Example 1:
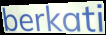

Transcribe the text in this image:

berkati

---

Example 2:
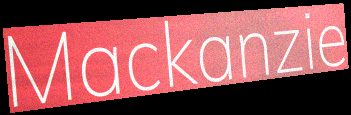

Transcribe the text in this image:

Mackanzie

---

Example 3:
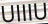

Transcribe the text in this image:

UIIIU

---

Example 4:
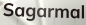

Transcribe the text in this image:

Sagarmal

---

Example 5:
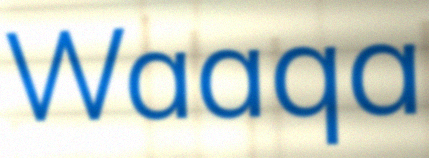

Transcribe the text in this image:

Waaqa